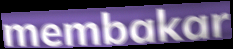
membakar